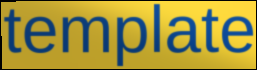
template